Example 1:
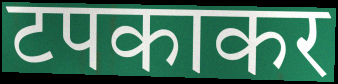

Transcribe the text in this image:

टपकाकर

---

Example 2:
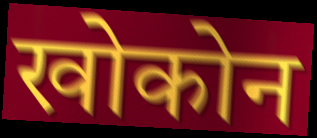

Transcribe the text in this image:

खोकोन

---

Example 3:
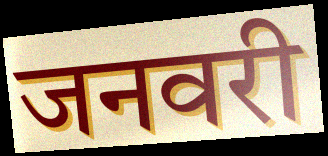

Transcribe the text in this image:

जनवरी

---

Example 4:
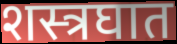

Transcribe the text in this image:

शस्त्रघात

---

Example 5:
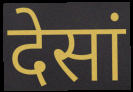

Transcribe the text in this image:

देसां